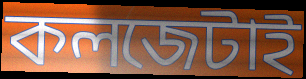
কলজেটাই